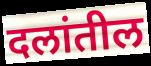
दलांतील